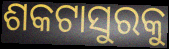
ଶକଟାସୁରକୁ